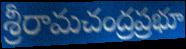
శ్రీరామచంద్రప్రభూ